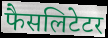
फैसलिटेटर